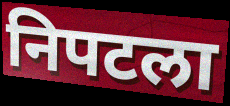
निपटला